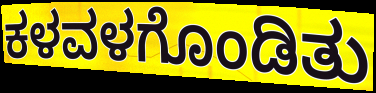
ಕಳವಳಗೊಂಡಿತು